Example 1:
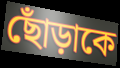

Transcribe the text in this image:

ছোঁড়াকে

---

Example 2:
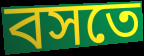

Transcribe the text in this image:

বসতে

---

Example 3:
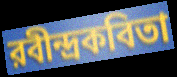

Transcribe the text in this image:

রবীন্দ্রকবিতা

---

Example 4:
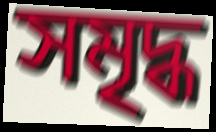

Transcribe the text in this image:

সমৃদ্ধ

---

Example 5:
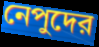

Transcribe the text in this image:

নেপুদের